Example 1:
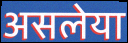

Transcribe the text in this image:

असलेया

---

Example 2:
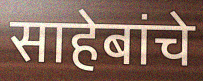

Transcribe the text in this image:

साहेबांचे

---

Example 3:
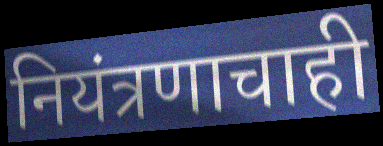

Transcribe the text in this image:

नियंत्रणाचाही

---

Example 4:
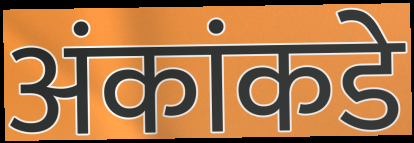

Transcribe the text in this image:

अंकांकडे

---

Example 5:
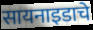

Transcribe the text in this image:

सायनाइडाचे